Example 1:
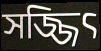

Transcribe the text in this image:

সজ্জিৎ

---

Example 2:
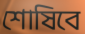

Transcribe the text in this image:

শোষিবে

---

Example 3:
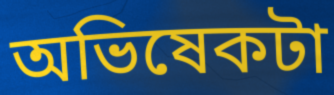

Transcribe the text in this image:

অভিষেকটা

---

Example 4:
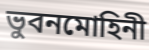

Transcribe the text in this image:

ভুবনমোহিনী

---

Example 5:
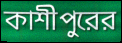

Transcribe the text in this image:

কাশীপুরের